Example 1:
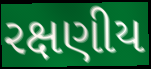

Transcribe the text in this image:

રક્ષણીય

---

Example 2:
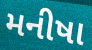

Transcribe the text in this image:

મનીષા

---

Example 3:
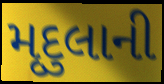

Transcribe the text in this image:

મૃદુલાની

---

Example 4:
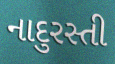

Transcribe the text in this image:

નાદુરસ્તી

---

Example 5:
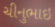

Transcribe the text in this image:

ચીનુભાઇ